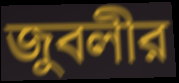
জুবলীর